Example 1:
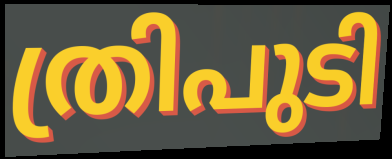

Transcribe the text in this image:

ത്രിപുടി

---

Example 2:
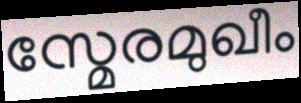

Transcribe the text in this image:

സ്മേരമുഖീം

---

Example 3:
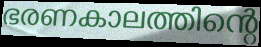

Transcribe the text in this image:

ഭരണകാലത്തിന്റെ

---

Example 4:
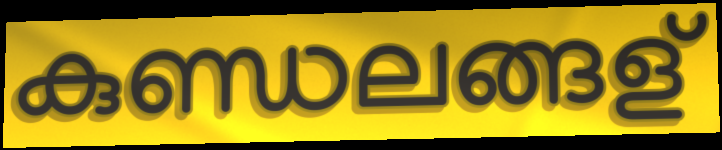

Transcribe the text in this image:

കുണ്ഡലങ്ങള്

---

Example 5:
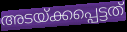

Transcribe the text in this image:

അടയ്ക്കപ്പെട്ടത്